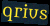
qrius